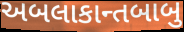
અબલાકાન્તબાબુ